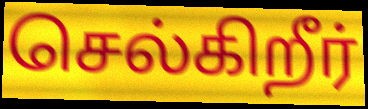
செல்கிறீர்